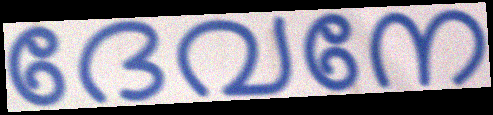
ദേവനേ